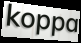
koppa